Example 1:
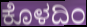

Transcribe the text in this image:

ಕೊಳದಿಂ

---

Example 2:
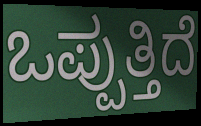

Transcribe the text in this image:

ಒಪ್ಪುತ್ತಿದೆ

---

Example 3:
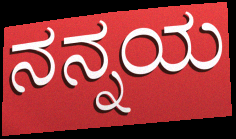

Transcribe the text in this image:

ನನ್ನಯ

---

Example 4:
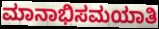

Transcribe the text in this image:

ಮಾನಾಭಿಸಮಯಾತಿ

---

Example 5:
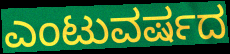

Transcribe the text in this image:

ಎಂಟುವರ್ಷದ